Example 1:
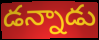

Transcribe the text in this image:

డన్నాడు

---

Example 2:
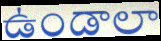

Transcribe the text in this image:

ఉండాలా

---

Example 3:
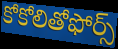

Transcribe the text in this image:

కోకోలితోఫోర్స్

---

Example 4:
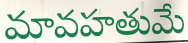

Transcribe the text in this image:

మావహతుమే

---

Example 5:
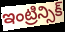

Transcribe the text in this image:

ఇంట్రిన్సిక్